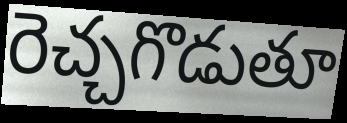
రెచ్చగొడుతూ